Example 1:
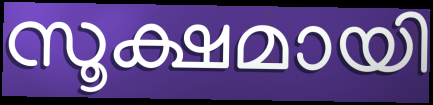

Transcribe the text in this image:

സൂക്ഷമായി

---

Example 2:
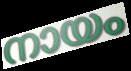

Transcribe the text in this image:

നായം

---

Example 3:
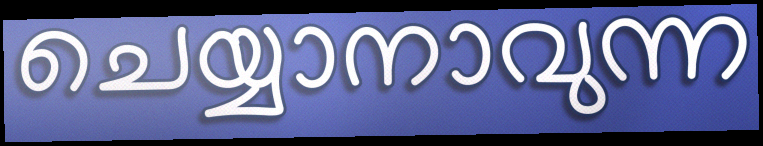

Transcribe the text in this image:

ചെയ്യാനാവുന്ന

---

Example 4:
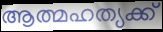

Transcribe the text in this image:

ആത്മഹത്യക്ക്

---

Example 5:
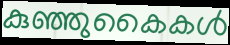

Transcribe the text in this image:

കുഞ്ഞുകൈകൾ